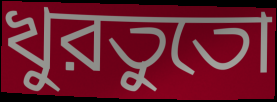
খুরতুতো